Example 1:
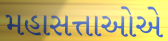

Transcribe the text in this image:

મહાસત્તાઓએ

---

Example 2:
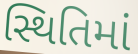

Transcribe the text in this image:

સ્થિતિમાં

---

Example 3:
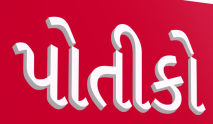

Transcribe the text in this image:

પોતીકો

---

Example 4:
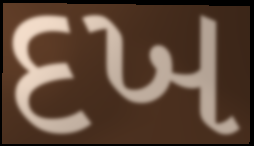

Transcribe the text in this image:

દખ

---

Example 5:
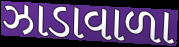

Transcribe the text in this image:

ઝાડાવાળા